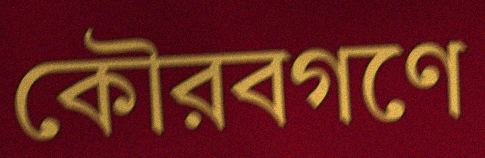
কৌরবগণে